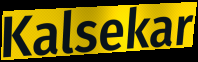
Kalsekar